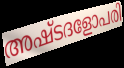
അഷ്ടദളോപരി